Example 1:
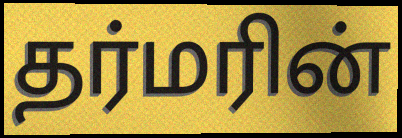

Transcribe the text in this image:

தர்மரின்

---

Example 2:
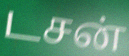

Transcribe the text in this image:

டசன்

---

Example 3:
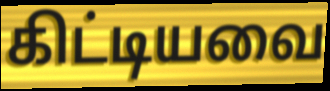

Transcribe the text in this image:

கிட்டியவை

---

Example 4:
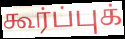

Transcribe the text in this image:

கூர்ப்புக்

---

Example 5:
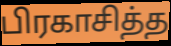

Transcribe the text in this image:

பிரகாசித்த